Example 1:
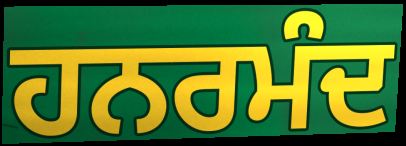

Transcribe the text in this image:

ਹਨਰਮੰਦ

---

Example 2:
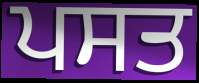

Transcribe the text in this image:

ਪਸਤ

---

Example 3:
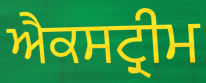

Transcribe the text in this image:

ਐਕਸਟ੍ਰੀਮ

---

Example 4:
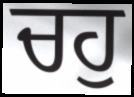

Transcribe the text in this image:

ਚਹੁ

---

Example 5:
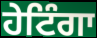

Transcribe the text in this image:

ਹੇਟਿੰਗਾ